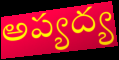
అప్యద్య